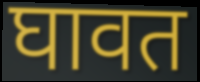
घावत